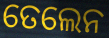
ତେଲେନ